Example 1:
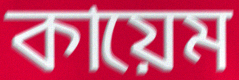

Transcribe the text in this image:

কায়েম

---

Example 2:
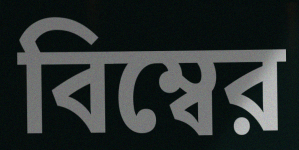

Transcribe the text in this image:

বিম্বের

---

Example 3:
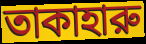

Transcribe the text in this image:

তাকাহারু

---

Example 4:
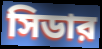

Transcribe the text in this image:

সিডার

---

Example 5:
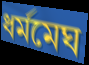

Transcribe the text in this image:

ধর্মমেঘ